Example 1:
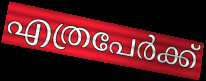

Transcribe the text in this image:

എത്രപേർക്ക്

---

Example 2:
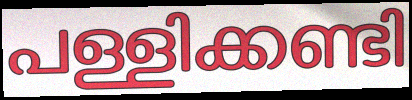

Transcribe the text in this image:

പള്ളിക്കണ്ടി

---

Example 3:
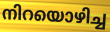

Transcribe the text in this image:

നിറയൊഴിച്ച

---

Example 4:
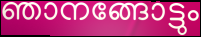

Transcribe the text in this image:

ഞാനങ്ങോട്ടും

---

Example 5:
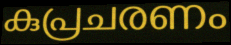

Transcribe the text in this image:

കുപ്രചരണം